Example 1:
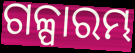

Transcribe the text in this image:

ଗଳ୍ପାରମ୍ଭ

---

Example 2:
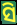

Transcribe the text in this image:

ସି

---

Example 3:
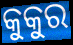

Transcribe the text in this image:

କୁକୁର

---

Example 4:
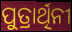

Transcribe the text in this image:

ପୁତ୍ରାର୍ଥିନୀ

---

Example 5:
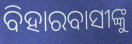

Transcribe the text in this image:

ବିହାରବାସୀଙ୍କୁ